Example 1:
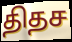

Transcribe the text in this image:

திதச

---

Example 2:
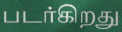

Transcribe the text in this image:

படர்கிறது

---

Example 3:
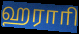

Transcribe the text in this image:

ஹராரி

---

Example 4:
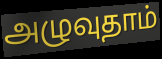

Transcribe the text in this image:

அழுவுதாம்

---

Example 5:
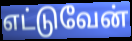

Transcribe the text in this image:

எட்டுவேன்